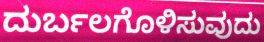
ದುರ್ಬಲಗೊಳಿಸುವುದು